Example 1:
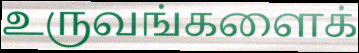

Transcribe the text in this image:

உருவங்களைக்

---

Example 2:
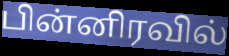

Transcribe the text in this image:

பின்னிரவில்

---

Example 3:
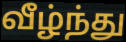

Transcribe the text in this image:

வீழ்ந்து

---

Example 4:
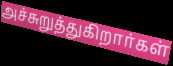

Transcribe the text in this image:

அச்சுறுத்துகிறார்கள்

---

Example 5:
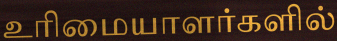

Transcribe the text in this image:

உரிமையாளர்களில்